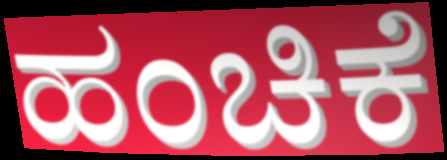
ಹಂಚಿಕೆ